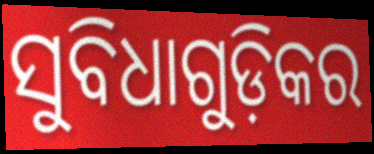
ସୁବିଧାଗୁଡ଼ିକର